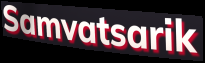
Samvatsarik